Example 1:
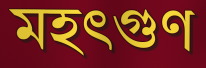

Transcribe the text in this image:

মহৎগুণ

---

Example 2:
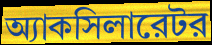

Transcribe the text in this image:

অ্যাকসিলারেটর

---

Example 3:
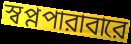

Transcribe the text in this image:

স্বপ্নপারাবারে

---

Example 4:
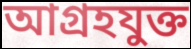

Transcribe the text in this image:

আগ্রহযুক্ত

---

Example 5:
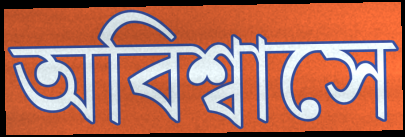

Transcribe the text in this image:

অবিশ্বাসে